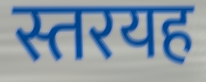
स्तरयह